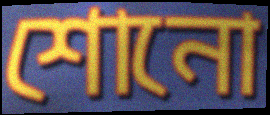
শোনো